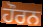
ਹੌਰਨ